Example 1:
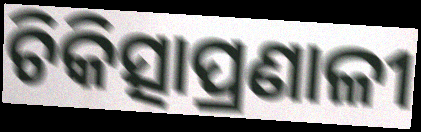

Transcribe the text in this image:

ଚିକିତ୍ସାପ୍ରଣାଳୀ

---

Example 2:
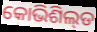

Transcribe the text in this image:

କୋଭିଶିଲ୍‌ଡ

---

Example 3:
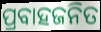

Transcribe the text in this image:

ପ୍ରବାହଜନିତ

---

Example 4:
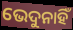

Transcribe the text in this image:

ଭେଦୁନାହିଁ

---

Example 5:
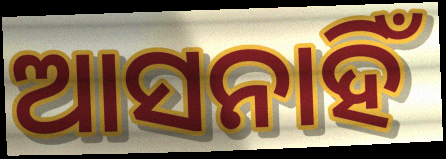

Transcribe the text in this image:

ଆସନାହିଁ